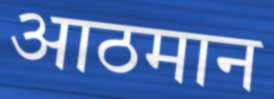
आठमान